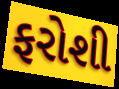
ફરોશી